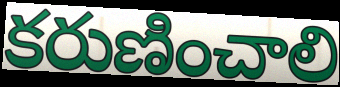
కరుణించాలి